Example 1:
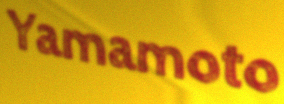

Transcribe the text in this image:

Yamamoto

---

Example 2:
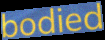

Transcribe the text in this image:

bodied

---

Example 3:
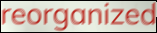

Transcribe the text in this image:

reorganized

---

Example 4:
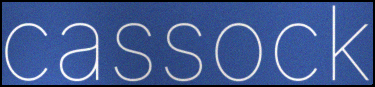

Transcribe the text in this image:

cassock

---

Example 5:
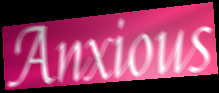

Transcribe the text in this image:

Anxious